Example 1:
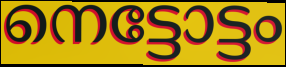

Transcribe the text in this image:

നെട്ടോട്ടം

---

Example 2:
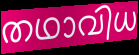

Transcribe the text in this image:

തഥാവിധ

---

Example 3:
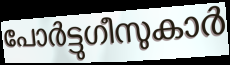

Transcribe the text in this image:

പോർട്ടുഗീസുകാർ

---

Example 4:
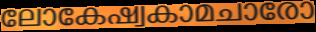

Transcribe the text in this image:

ലോകേഷ്വകാമചാരോ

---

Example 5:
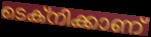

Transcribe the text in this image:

ടെക്നിക്കാണ്